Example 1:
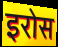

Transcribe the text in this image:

इरोस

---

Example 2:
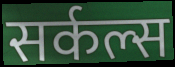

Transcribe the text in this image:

सर्कल्‍स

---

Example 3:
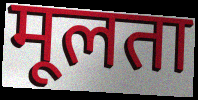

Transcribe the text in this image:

मूलता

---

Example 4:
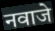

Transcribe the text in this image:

नवाजे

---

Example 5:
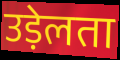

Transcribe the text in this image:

उड़ेलता